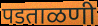
पडताळणी